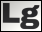
Lg